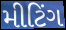
મીટિંગ